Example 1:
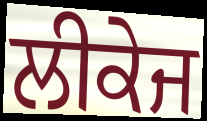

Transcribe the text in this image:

ਲੀਕੇਜ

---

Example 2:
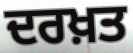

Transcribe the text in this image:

ਦਰਖ਼ਤ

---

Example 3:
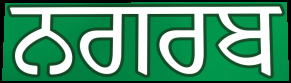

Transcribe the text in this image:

ਨਗਰਬ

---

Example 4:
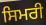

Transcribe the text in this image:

ਸਿਮਰੀ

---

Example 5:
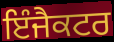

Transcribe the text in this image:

ਇੰਜੈਕਟਰ